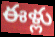
ఈళ్లు